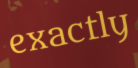
exactly